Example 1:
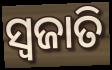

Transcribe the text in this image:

ସ୍ବଜାତି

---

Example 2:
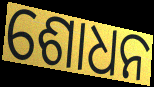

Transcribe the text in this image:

ଶୋଧନ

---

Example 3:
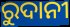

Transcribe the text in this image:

ରୁଦାନୀ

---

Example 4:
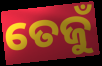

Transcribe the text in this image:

ତେଜୁଁ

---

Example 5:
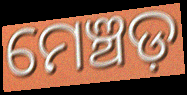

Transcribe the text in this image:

ମେଞ୍ଚଡ଼